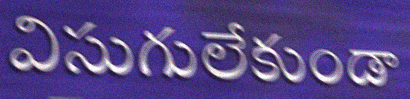
విసుగులేకుండా